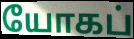
யோகப்